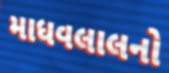
માધવલાલનો